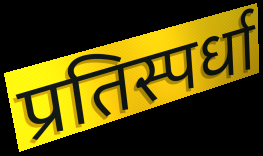
प्रतिस्पर्धा